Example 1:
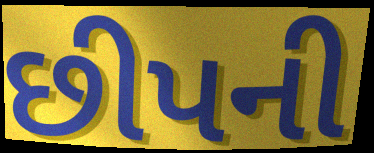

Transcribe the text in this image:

છીપની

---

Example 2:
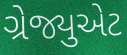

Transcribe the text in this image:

ગ્રેજ્યુએટ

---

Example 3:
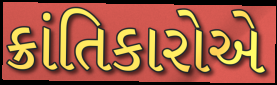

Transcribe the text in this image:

ક્રાંતિકારોએ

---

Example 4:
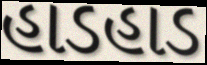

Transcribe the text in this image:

હાડહાડ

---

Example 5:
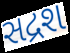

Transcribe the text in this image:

સદ્રશ